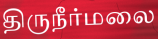
திருநீர்மலை